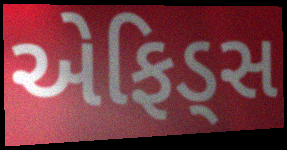
એફિડ્સ